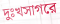
দুঃখসাগরে